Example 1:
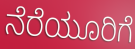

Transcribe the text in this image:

ನೆರೆಯೂರಿಗೆ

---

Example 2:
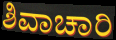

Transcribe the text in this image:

ಶಿವಾಚಾರಿ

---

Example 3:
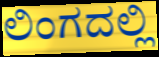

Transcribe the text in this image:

ಲಿಂಗದಲ್ಲಿ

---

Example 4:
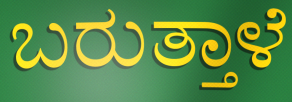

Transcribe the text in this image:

ಬರುತ್ತಾಳೆ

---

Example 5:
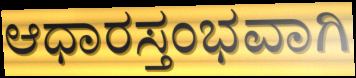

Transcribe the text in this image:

ಆಧಾರಸ್ತಂಭವಾಗಿ